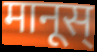
मानूस्